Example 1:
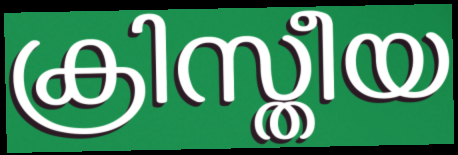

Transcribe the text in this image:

ക്രിസ്തീയ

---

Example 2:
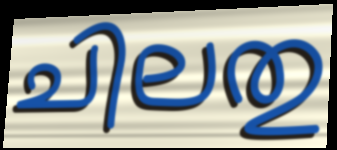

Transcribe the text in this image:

ചിലതു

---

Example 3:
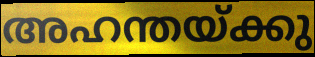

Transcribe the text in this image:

അഹന്തയ്ക്കു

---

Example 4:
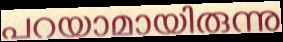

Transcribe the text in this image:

പറയാമായിരുന്നു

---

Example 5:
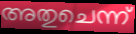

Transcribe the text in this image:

അതുചെന്ന്